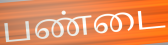
பண்டை